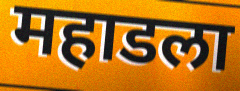
महाडला